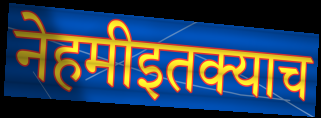
नेहमीइतक्याच